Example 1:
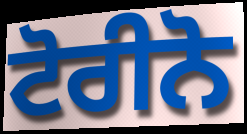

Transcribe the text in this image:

ਟੋਰੀਨੋ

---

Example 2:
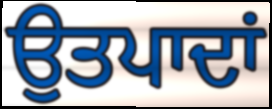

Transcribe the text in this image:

ਉਤਪਾਦਾਂ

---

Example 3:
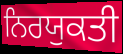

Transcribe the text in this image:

ਨਿਰਯੁਕਤੀ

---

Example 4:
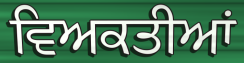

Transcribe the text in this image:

ਵਿਅਕਤੀਆਂ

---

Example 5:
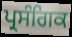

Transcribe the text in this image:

ਪ੍ਰਸੰਗਿਕ